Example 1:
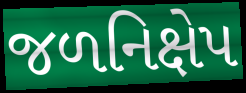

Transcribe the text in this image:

જળનિક્ષેપ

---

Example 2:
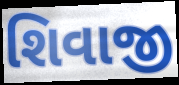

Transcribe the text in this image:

શિવાજી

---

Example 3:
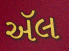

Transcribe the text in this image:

ઍલ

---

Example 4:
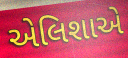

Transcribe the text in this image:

એલિશાએ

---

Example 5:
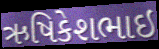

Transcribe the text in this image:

ઋષિકેશભાઇ